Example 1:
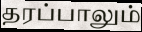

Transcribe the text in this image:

தரப்பாலும்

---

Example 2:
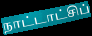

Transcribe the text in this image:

நாட்டாட்சிப்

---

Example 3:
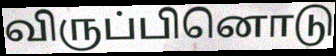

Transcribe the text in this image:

விருப்பினொடு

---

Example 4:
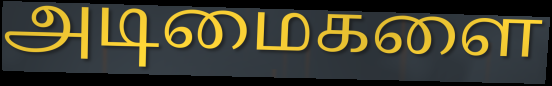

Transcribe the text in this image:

அடிமைகளை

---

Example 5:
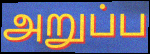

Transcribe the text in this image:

அறுப்ப